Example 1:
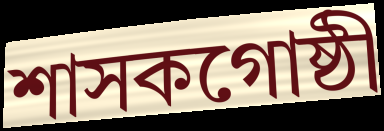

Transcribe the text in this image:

শাসকগোষ্ঠী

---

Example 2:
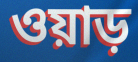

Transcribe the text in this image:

ওয়াড়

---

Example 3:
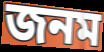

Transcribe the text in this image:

জনম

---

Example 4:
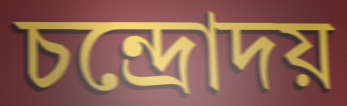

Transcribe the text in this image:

চন্দ্রোদয়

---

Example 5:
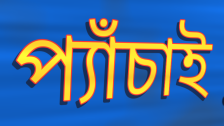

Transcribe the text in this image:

প্যাঁচাই